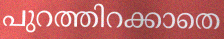
പുറത്തിറക്കാതെ